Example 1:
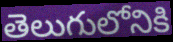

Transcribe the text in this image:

తెలుగులోనికి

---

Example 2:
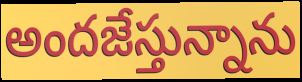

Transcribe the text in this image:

అందజేస్తున్నాను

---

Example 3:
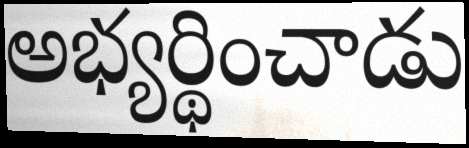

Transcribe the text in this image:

అభ్యర్థించాడు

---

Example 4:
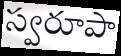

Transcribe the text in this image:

స్వరూపా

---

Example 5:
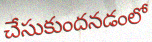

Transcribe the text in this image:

చేసుకుందనడంలో